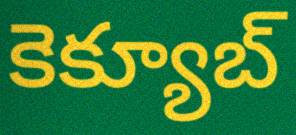
కెక్యూబ్